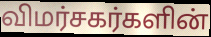
விமர்சகர்களின்